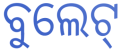
ବୁଲେଟ୍